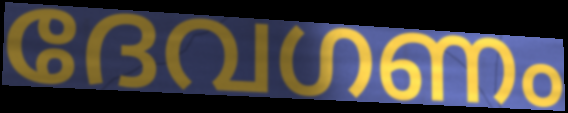
ദേവഗണം